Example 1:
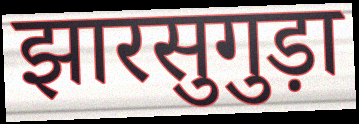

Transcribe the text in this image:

झारसुगुड़ा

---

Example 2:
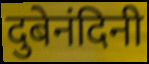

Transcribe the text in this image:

दुबेनंदिनी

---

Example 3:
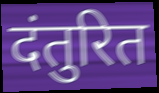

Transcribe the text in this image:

दंतुरित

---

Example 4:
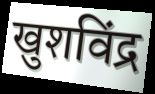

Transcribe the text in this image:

खुशविंद्र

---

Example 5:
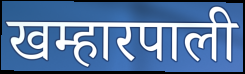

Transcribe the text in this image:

खम्हारपाली